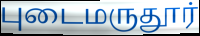
புடைமருதூர்